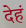
देहं